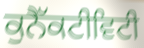
ਕੁਨੈੱਕਟੀਵਿਟੀ